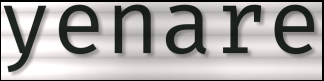
yenare